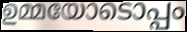
ഉമ്മയോടൊപ്പം